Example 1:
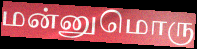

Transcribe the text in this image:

மன்னுமொரு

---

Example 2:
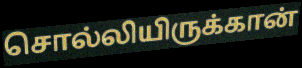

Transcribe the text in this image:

சொல்லியிருக்கான்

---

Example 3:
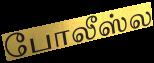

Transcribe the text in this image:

போலீஸ்ல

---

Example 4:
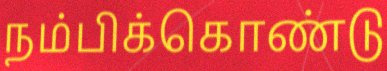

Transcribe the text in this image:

நம்பிக்கொண்டு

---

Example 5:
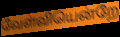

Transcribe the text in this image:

வேள்வியென்றே